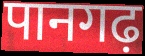
पानगढ़